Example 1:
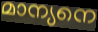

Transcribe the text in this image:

മാന്യനെ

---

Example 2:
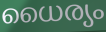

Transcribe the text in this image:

ധൈര്യം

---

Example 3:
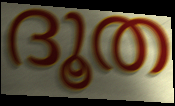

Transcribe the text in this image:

ദൂത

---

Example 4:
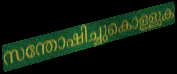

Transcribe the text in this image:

സന്തോഷിച്ചുകൊള്ളുക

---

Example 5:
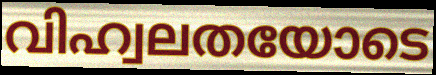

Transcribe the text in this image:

വിഹ്വലതയോടെ